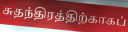
சுதந்திரத்திற்காகப்